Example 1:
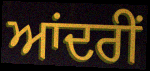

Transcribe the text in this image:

ਆਂਦਰੀਂ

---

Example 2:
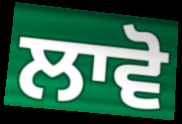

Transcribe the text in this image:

ਲਾਵੋ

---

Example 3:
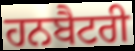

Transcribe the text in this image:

ਹਨਬੈਟਰੀ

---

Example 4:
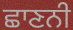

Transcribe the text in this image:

ਛਾਣਨੀ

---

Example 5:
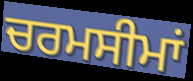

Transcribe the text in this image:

ਚਰਮਸੀਮਾਂ